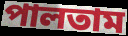
পালতাম